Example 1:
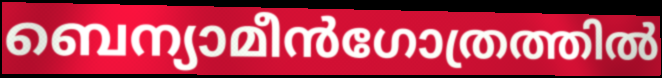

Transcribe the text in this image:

ബെന്യാമീൻഗോത്രത്തിൽ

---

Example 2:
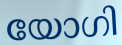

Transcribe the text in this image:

യോഗി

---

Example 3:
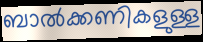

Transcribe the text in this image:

ബാൽക്കണികളുള്ള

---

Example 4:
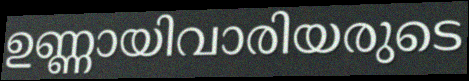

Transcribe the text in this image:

ഉണ്ണായിവാരിയരുടെ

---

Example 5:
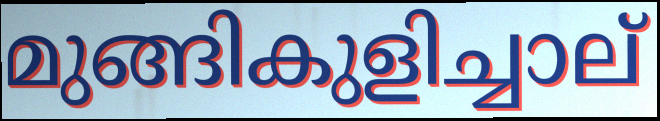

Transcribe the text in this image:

മുങ്ങികുളിച്ചാല്